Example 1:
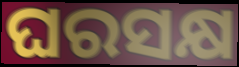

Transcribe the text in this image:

ଘରସକ୍ଷ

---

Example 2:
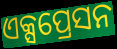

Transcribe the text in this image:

ଏକ୍ସପ୍ରେସନ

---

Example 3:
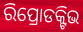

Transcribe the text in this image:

ରିପ୍ରୋଡକ୍ଟିଭ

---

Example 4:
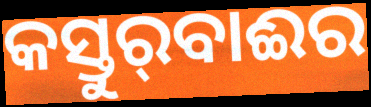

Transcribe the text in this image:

କସ୍ତୁର୍‍ବାଈର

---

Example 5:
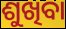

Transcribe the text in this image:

ଶୁଖିବା